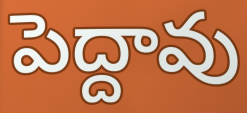
పెద్దావు